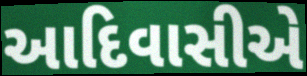
આદિવાસીએ